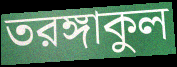
তরঙ্গাকুল